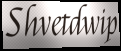
Shvetdwip